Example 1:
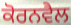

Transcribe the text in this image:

ਕੋਰਨਵੈਲ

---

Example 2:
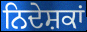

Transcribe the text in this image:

ਨਿਦੇਸ਼ਕਾਂ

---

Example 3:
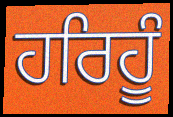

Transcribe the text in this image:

ਹਰਿਹੂੰ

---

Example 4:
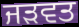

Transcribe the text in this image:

ਜੜਵਤ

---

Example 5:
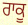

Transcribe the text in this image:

ਰਾਕੂ